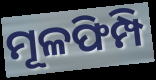
ମୂଳଫିମ୍ପି